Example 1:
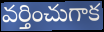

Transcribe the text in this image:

వర్తించుగాక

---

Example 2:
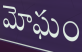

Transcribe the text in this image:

మోఘం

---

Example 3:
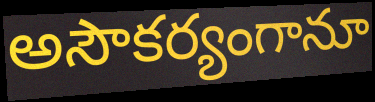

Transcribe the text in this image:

అసౌకర్యంగానూ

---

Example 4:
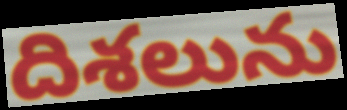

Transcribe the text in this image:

దిశలును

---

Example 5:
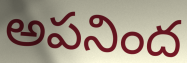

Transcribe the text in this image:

అపనింద